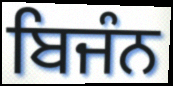
ਬਿਜੰਨ